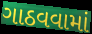
ગાઠવવામાં